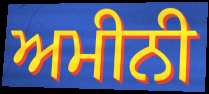
ਅਮੀਨੀ